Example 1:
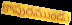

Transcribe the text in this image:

కాపురముండు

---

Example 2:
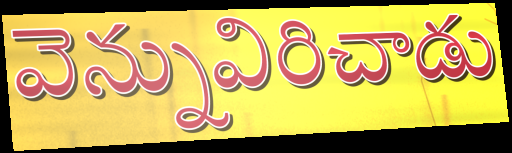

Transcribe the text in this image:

వెన్నువిరిచాడు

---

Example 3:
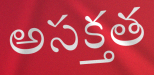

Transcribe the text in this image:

అసక్తత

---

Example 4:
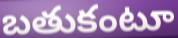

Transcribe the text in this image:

బతుకంటూ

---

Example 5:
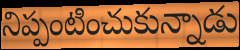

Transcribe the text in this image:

నిప్పంటించుకున్నాడు